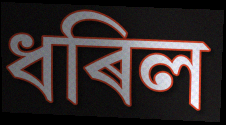
ধৰিল